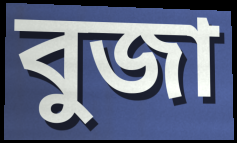
বুজা